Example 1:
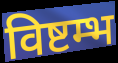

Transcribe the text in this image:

विष्टम्भ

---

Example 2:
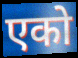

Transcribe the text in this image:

एको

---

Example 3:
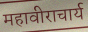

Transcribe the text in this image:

महावीराचार्य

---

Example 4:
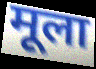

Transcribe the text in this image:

मूला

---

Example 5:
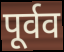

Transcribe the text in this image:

पूर्वव